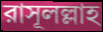
রাসূলল্লাহ